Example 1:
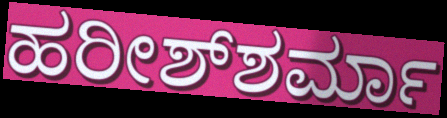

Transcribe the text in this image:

ಹರೀಶ್‌ಶರ್ಮಾ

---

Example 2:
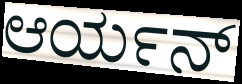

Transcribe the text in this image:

ಆರ್ಯನ್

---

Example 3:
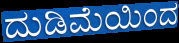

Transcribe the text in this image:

ದುಡಿಮೆಯಿಂದ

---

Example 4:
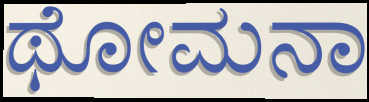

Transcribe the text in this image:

ಥೋಮನಾ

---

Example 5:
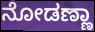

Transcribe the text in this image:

ನೋಡಣ್ಣಾ